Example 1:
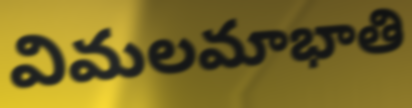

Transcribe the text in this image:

విమలమాభాతి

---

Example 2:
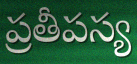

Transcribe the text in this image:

ప్రతీపస్య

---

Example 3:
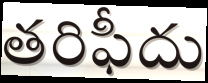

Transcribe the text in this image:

తరిఫీదు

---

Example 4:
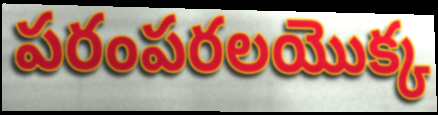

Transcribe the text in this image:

పరంపరలయొక్క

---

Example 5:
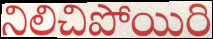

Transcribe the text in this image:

నిలిచిపోయిరి